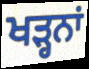
ਖੜ੍ਹਨਾਂ